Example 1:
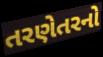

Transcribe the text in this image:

તરણેતરનો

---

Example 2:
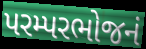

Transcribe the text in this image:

પરમ્પરભોજનં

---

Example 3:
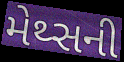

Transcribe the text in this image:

મેથ્સની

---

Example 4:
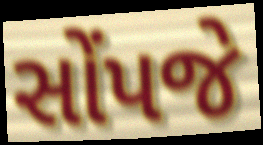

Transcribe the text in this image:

સોંપજે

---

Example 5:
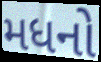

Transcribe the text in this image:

મધનો